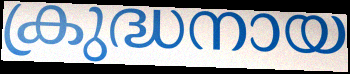
ക്രുദ്ധനായ